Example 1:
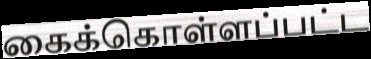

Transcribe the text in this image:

கைக்கொள்ளப்பட்ட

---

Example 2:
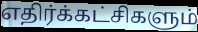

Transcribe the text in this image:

எதிர்க்கட்சிகளும்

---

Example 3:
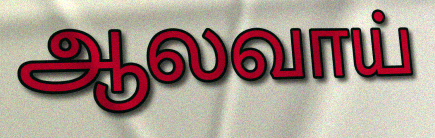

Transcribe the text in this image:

ஆலவாய்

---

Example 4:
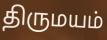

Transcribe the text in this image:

திருமயம்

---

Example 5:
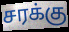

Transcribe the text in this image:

சரக்கு